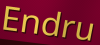
Endru